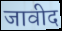
जावीद